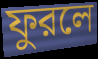
ফুরলে